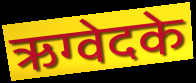
ऋग्वेदके